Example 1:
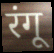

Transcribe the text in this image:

रंगू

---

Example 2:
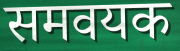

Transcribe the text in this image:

समवयक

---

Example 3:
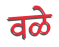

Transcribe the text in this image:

वळे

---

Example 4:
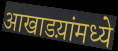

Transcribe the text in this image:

आखाडय़ांमध्ये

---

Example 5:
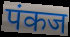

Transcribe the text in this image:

पंकज